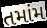
તમાંમ